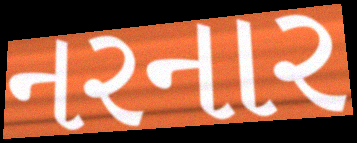
નરનાર